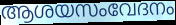
ആശയസംവേദനം